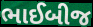
ભાઈબીજ